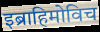
इब्राहिमोविच